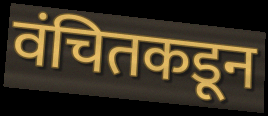
वंचितकडून